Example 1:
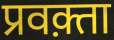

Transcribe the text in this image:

प्रवक़्ता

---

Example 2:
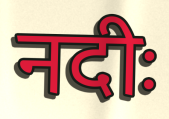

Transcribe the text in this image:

नदीः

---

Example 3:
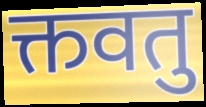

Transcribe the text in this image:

क्तवतु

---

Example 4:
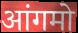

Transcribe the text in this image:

आंगमो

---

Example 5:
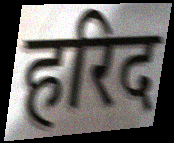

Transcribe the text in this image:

हरिद